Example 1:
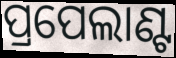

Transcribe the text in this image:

ପ୍ରପେଲାଣ୍ଟ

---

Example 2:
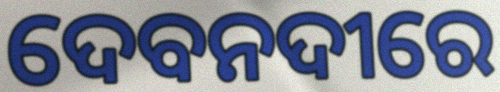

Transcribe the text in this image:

ଦେବନଦୀରେ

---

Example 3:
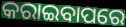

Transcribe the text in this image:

କରାଇବାପରେ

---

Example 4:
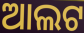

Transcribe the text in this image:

ଆଲଟ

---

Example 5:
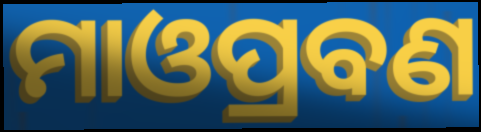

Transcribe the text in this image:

ମାଓପ୍ରବଣ